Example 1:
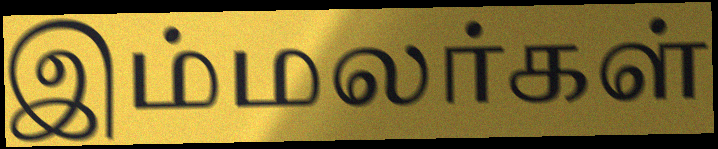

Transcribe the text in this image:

இம்மலர்கள்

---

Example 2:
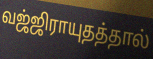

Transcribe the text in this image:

வஜ்ஜிராயுதத்தால்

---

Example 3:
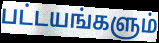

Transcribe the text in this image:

பட்டயங்களும்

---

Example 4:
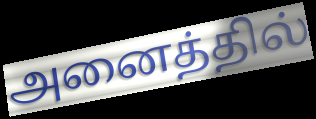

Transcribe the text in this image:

அனைத்தில்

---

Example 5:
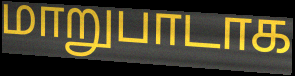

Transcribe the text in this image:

மாறுபாடாக